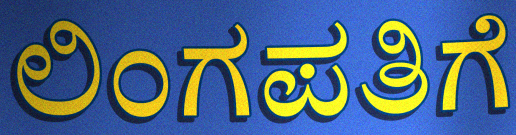
ಲಿಂಗಪತಿಗೆ